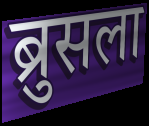
ब्रुसला